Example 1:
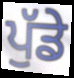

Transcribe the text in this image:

ਪੁੱਡੇ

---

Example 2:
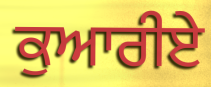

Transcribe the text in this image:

ਕੁਆਰੀਏ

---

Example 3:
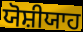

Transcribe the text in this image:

ਯੋਸ਼ੀਯਾਹ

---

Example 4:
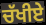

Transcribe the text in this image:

ਚੱਖੀਏ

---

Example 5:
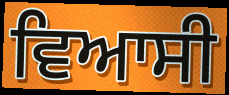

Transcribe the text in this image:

ਵਿਆਸੀ